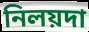
নিলয়দা